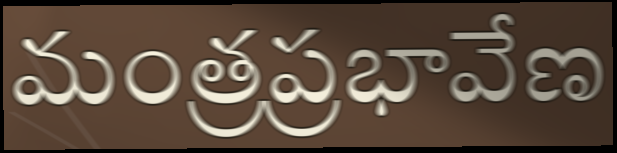
మంత్రప్రభావేణ